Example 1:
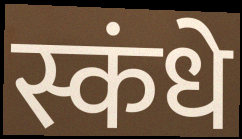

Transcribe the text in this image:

स्कंधे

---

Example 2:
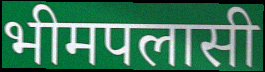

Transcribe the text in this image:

भीमपलासी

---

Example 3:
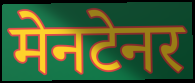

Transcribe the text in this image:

मेनटेनर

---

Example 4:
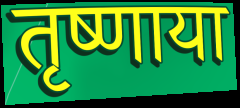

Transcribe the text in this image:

तृष्णाया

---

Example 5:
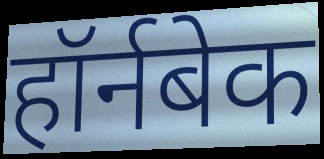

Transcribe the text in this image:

हॉर्नबेक